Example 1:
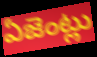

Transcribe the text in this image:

ఏజెంట్లు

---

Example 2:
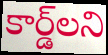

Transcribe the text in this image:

కార్డ్‌లని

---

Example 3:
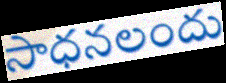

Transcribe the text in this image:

సాధనలందు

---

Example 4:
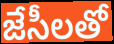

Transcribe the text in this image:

జేసీలతో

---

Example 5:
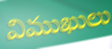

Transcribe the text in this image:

విముఖులు